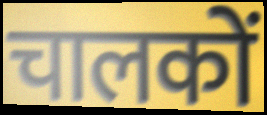
चालकों